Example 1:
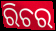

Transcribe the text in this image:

ରିଚର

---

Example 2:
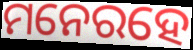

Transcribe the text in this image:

ମନେରହେ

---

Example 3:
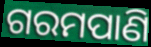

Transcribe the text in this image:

ଗରମପାଣି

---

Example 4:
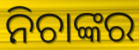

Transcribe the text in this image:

ନିଚାଙ୍କର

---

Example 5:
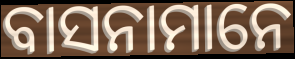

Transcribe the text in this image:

ବାସନାମାନେ